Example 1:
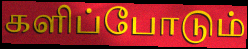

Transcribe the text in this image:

களிப்போடும்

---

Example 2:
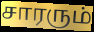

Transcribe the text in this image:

சாரரும்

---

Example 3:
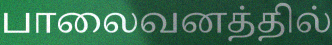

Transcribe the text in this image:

பாலைவனத்தில்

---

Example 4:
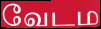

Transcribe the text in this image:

வேடம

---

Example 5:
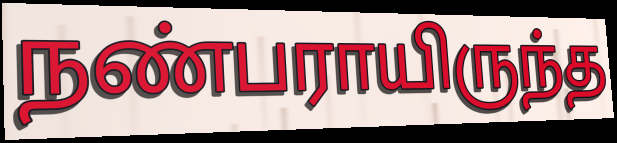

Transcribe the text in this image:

நண்பராயிருந்த